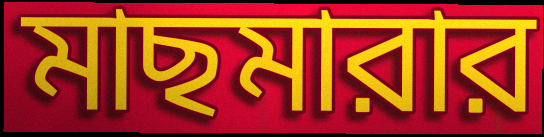
মাছমারার